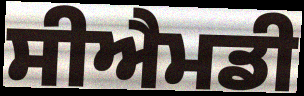
ਸੀਐਮਡੀ